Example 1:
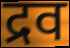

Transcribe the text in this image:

द्रव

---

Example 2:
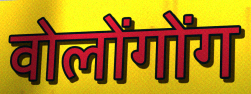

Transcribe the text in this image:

वोलोंगोंग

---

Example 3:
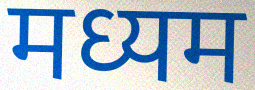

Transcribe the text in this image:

मध्यम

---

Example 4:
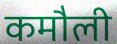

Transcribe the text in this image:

कमौली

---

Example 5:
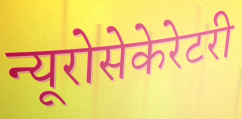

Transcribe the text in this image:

न्यूरोसेकेरेटरी